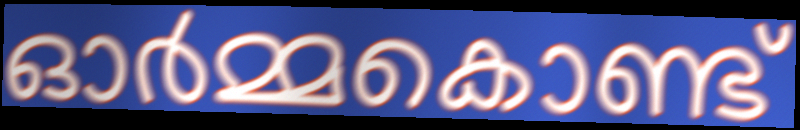
ഓർമ്മകൊണ്ട്